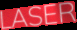
LASER